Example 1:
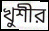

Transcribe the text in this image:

খুশীর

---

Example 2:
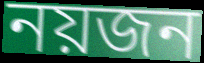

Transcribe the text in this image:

নয়জন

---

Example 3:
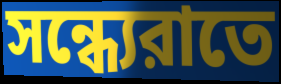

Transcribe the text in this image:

সন্ধ্যেরাতে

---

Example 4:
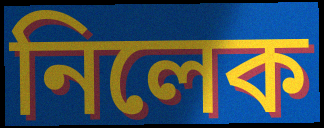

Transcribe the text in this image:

নিলেক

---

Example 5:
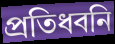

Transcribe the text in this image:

প্রতিধবনি